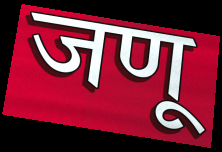
जणू